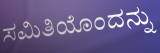
ಸಮಿತಿಯೊಂದನ್ನು